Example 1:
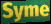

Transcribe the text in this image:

Syme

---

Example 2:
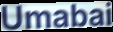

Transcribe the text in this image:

Umabai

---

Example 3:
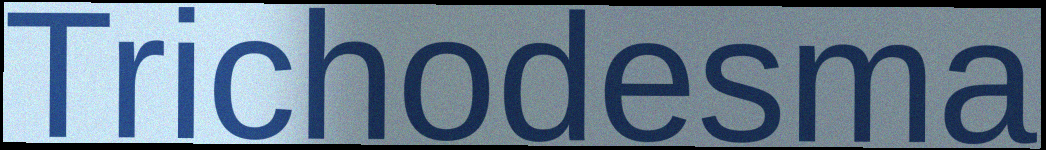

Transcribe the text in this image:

Trichodesma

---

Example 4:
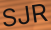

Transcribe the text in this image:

SJR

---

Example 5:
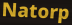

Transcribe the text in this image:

Natorp